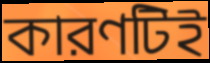
কারণটিই